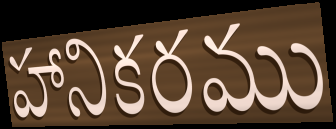
హానికరము